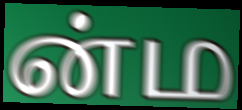
ன்ம